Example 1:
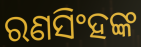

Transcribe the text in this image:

ରଣସିଂହଙ୍କ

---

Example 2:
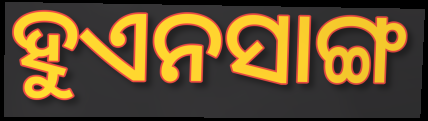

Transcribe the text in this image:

ହୁଏନସାଙ୍ଗ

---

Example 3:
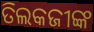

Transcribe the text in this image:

ତିଲକଜୀଙ୍କ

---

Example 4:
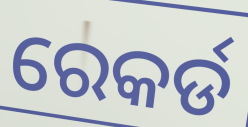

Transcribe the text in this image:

ରେକର୍ଡ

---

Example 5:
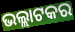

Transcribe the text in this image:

ଭଲ୍ଲାଟକର